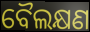
ବୈଲକ୍ଷଣ